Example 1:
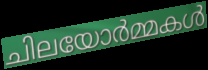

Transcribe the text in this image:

ചിലയോർമ്മകൾ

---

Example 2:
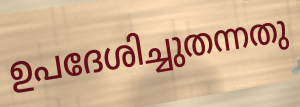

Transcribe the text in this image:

ഉപദേശിച്ചുതന്നതു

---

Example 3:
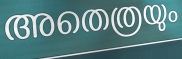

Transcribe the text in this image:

അതെത്രയും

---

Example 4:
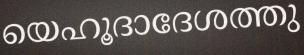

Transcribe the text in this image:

യെഹൂദാദേശത്തു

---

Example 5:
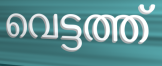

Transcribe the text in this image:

വെട്ടത്ത്